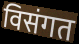
विसंगत